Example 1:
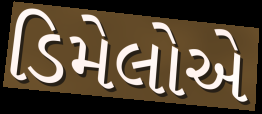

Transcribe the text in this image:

ડિમેલોએ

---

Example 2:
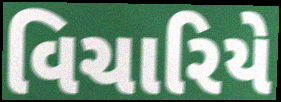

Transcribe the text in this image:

વિચારિયે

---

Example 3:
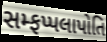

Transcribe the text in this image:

સમ્ફપ્પલાપોતિ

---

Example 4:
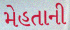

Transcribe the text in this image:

મેહતાની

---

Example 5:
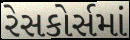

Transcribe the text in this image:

રેસકોર્સમાં